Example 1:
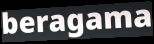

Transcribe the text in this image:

beragama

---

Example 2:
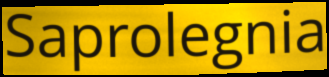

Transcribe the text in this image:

Saprolegnia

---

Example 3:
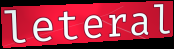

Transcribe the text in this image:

leteral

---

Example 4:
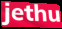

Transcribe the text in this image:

jethu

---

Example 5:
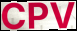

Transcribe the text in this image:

CPV